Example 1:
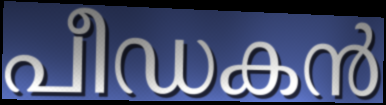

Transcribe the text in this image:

പീഡകൻ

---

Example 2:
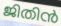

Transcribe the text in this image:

ജിതിൻ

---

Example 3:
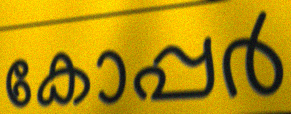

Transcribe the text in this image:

കോപ്പർ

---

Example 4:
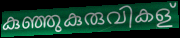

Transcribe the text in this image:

കുഞ്ഞുകുരുവികള്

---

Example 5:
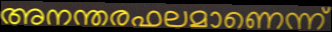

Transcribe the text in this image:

അനന്തരഫലമാണെന്ന്